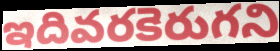
ఇదివరకెరుగని